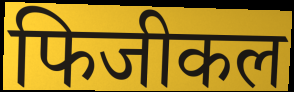
फिजीकल